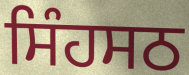
ਸਿੰਹਸਠ